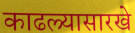
काढल्यासारखे